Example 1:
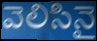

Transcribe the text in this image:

వెలిసినై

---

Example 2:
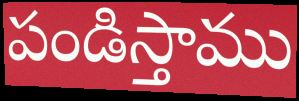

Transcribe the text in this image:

పండిస్తాము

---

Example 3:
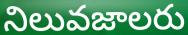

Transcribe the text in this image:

నిలువజాలరు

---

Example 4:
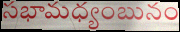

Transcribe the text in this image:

సభామధ్యంబునం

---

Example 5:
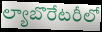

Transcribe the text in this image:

ల్యాబొరేటరీలో